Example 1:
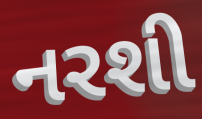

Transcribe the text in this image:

નરશી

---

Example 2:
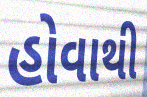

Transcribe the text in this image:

હોવાથી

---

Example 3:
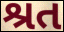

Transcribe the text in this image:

શ્રત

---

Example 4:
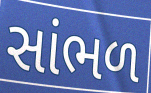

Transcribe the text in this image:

સાંભળ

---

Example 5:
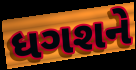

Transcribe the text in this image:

ધગશને